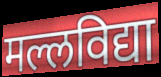
मल्लविद्या